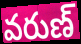
వరుణ్